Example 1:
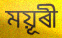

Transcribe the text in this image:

ময়ূৰী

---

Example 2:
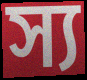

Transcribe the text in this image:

স্য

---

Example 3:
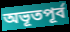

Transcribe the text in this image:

অভূতপূৰ্ব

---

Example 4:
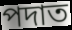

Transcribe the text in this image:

পদাত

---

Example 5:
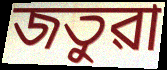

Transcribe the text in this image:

জতুৱা